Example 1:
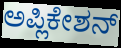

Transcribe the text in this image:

ಅಪ್ಲಿಕೇಶನ್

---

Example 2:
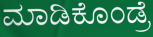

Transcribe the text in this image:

ಮಾಡಿಕೊಂಡ್ರೆ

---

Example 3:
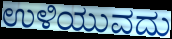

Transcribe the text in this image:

ಉಳಿಯುವದು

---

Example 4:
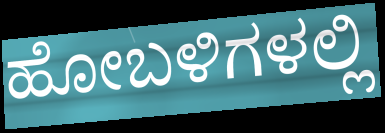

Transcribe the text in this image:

ಹೋಬಳಿಗಳಲ್ಲಿ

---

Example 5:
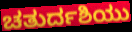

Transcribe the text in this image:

ಚತುರ್ದಶಿಯು